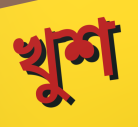
খুশ